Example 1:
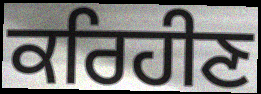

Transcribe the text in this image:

ਕਰਿਹੀਣ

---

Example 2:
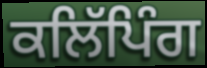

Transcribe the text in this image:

ਕਲਿੱਪਿੰਗ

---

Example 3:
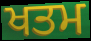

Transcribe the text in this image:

ਖਤਮ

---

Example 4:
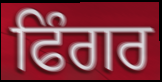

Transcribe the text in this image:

ਫਿੰਗਰ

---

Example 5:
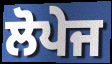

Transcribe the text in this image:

ਲੋਪੇਜ